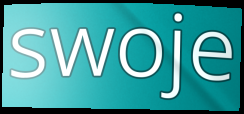
swoje